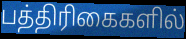
பத்திரிகைகளில்